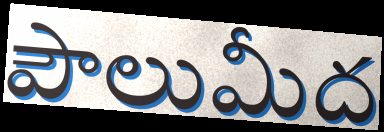
పౌలుమీద